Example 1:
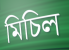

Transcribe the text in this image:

মিচিল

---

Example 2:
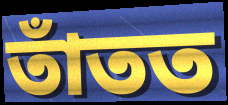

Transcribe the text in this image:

তাঁতত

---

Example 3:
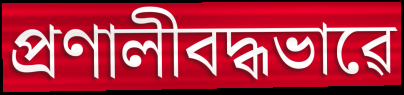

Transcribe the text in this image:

প্ৰণালীবদ্ধভাৱে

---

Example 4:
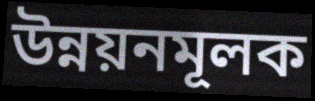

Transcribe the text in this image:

উন্নয়নমূলক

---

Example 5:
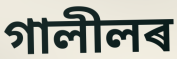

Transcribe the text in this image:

গালীলৰ